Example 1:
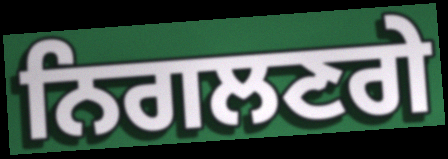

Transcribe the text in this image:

ਨਿਗਲਣਗੇ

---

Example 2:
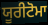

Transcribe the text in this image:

ਯੂਰੀਟੋਮਾ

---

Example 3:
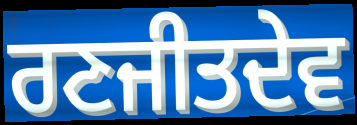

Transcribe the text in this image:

ਰਣਜੀਤਦੇਵ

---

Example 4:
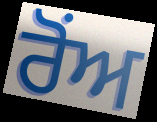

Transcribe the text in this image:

ਰੋਂਅ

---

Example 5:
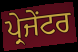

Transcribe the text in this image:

ਪ੍ਰੇਜੇਂਟਰ